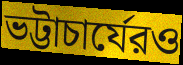
ভট্টাচার্যেরও